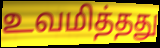
உவமித்தது